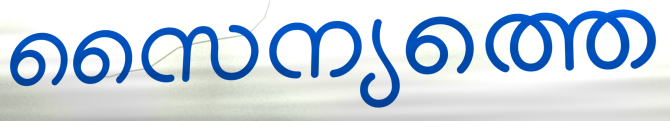
സൈന്യത്തെ